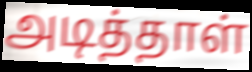
அடித்தாள்